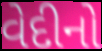
વેદીનો